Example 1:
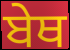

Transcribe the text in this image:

ਬੇਥ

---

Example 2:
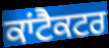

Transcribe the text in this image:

ਕਾਂਟੈਕਟਰ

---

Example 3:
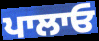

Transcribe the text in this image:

ਪਾਲਾਓ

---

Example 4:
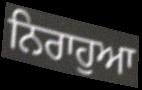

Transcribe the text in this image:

ਨਿਰਾਹੁਆ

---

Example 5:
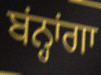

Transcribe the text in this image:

ਬਂਨ੍ਹਾਂਗਾ